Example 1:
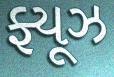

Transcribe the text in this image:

ફ્યૂઝ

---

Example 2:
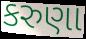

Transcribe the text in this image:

કરુણા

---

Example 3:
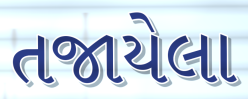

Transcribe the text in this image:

તજાયેલા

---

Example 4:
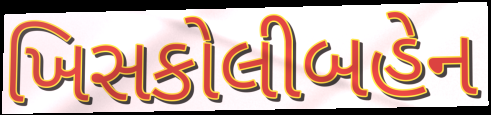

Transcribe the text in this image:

ખિસકોલીબહેન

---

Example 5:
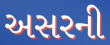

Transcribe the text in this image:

અસરની